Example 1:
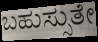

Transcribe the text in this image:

ಬಹುಸ್ಸುತೇ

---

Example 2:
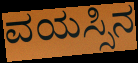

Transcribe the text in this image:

ವಯಸ್ಸಿನ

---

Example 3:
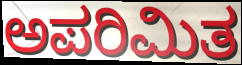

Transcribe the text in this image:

ಅಪರಿಮಿತ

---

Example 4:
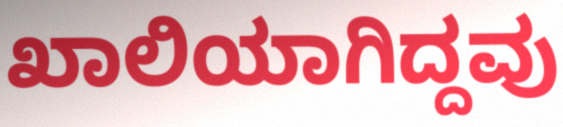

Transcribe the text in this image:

ಖಾಲಿಯಾಗಿದ್ದವು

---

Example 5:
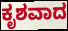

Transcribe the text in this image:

ಕೃಶವಾದ